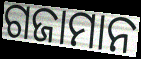
ଗଜାମାନ